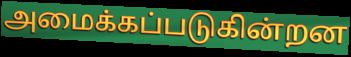
அமைக்கப்படுகின்றன